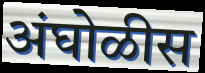
अंघोळीस